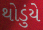
થોડુંયે